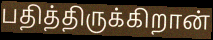
பதித்திருக்கிறான்